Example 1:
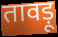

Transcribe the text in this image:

तावड़ू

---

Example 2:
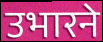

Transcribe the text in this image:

उभारने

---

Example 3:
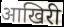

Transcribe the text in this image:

आखिरी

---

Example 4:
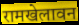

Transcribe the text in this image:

रामखेलावन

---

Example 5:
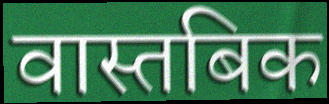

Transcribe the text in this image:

वास्तबिक